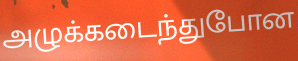
அழுக்கடைந்துபோன